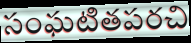
సంఘటితపరచి